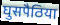
घुसपैठिया